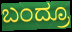
ಬಂದ್ರೂ